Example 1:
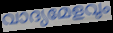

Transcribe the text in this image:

വാദ്യമേളവും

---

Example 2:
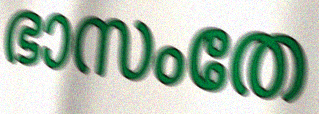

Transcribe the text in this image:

ഭാസംതേ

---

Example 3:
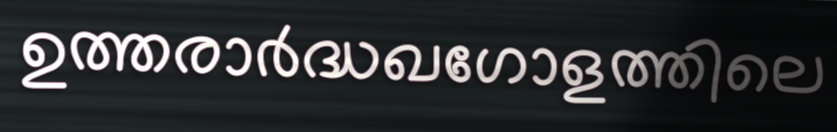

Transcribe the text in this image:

ഉത്തരാർദ്ധഖഗോളത്തിലെ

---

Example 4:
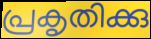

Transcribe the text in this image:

പ്രകൃതിക്കു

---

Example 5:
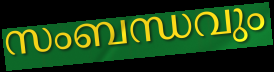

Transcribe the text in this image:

സംബന്ധവും